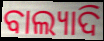
ବାଲ୍ୟାଦି